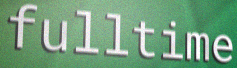
fulltime